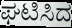
ಘಟಿಸಿದ